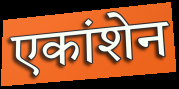
एकांशेन